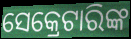
ସେକ୍ରେଟାରିଙ୍କ